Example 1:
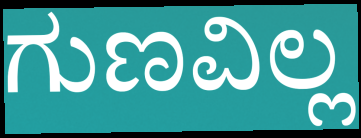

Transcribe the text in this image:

ಗುಣವಿಲ್ಲ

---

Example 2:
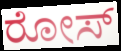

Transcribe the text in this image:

ರೋಸ್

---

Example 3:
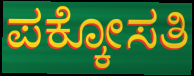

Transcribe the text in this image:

ಪಕ್ಕೋಸತಿ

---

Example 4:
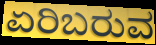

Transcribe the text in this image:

ಏರಿಬರುವ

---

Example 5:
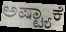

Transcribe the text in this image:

ಅಷ್ಟ್ಯಾಕೆ